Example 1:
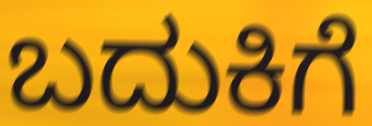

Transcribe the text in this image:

ಬದುಕಿಗೆ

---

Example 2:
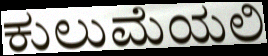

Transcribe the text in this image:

ಕುಲುಮೆಯಲಿ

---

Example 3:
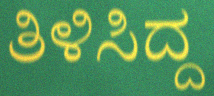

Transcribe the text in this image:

ತಿಳಿಸಿದ್ದ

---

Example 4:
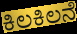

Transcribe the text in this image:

ಕಿಲಕಿಲನೆ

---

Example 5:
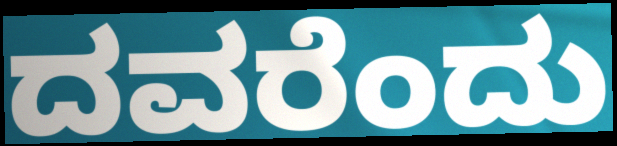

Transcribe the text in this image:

ದವರೆಂದು